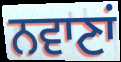
ਨਵਾਣਾਂ